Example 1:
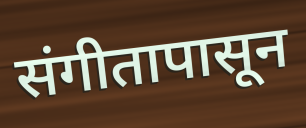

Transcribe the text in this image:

संगीतापासून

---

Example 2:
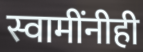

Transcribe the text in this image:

स्वामींनीही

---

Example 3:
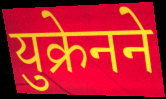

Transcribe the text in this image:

युक्रेनने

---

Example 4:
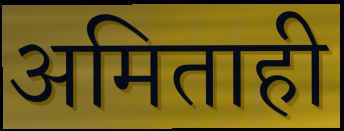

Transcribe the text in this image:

अमिताही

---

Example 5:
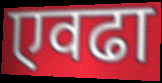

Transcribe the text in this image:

एवढा